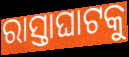
ରାସ୍ତାଘାଟକୁ